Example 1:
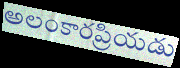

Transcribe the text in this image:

అలంకారప్రియడు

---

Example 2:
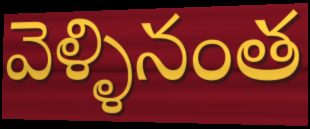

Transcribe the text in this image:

వెళ్ళినంత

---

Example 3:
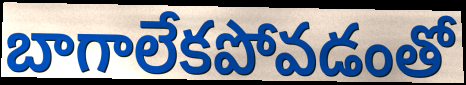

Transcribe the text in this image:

బాగాలేకపోవడంతో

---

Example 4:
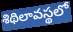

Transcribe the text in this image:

శిథిలావస్థలో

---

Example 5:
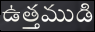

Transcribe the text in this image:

ఉత్తముడి